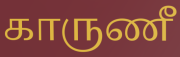
காருணீ